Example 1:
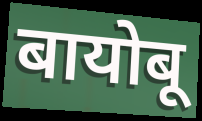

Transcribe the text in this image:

बायोबू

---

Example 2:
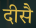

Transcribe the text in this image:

दीसै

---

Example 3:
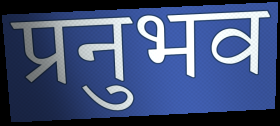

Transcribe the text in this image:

प्रनुभव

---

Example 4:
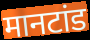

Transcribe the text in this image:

मानटांड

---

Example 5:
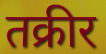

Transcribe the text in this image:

तक्रीर